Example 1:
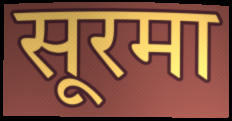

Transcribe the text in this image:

सूरमा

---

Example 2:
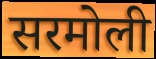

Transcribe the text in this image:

सरमोली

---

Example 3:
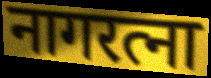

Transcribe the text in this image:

नागरत्ना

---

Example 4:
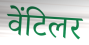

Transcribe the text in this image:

वेंटिलर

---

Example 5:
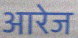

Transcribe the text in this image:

आरेज